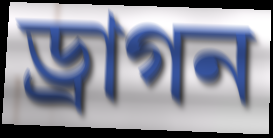
ড্রাগন